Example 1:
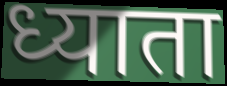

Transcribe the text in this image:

ध्याता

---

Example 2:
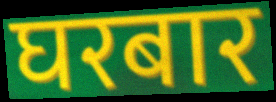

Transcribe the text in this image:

घरबार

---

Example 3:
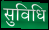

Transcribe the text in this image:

सुविधि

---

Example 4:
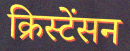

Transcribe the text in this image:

क्रिस्टेंसन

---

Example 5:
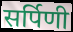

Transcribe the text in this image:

सर्पिणी